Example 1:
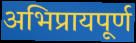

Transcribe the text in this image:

अभिप्रायपूर्ण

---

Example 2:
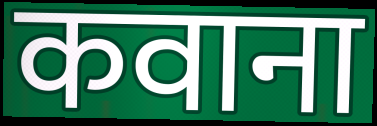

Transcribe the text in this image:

कवाना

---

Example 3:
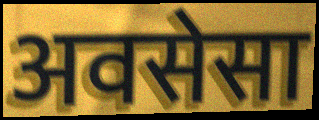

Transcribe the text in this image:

अवसेसा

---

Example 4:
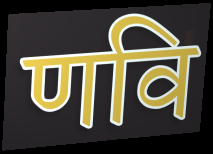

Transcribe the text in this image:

णवि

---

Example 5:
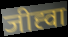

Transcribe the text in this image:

जीह्वा